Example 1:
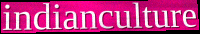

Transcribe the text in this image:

indianculture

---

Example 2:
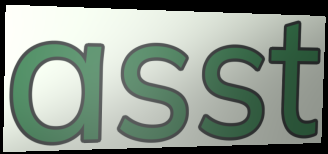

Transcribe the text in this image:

asst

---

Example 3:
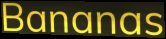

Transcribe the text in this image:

Bananas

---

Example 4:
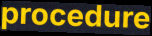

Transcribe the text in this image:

procedure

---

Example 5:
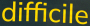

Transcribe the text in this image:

difficile